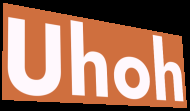
Uhoh